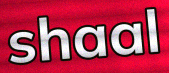
shaal